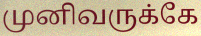
முனிவருக்கே